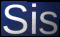
Sis